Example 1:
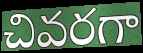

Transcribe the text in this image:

చివరగా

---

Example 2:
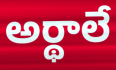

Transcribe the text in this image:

అర్థాలే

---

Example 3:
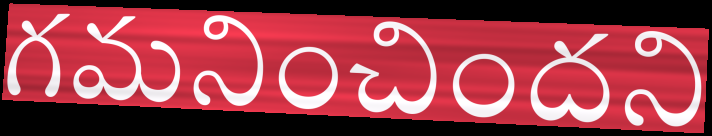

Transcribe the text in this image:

గమనించిందని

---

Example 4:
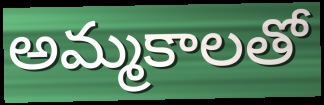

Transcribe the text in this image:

అమ్మకాలతో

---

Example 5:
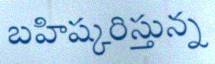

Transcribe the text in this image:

బహిష్కరిస్తున్న